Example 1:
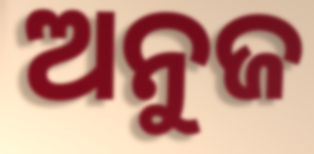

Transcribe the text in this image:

ଅନୁଜ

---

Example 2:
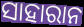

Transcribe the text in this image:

ସାହାରାନ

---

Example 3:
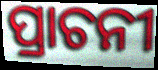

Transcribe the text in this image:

ପ୍ରାଚନୀ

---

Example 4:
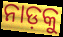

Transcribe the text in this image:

ନାଡ଼କୁ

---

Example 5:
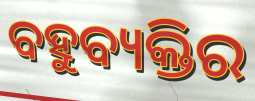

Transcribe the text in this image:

ବହୁବ୍ୟକ୍ତିର